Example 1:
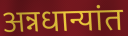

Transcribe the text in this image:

अन्नधान्यांत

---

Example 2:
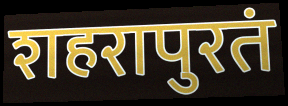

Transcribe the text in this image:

शहरापुरतं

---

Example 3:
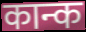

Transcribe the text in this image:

कान्क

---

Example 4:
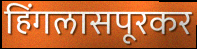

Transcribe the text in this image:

हिंगलासपूरकर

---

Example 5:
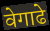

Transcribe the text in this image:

वेगाढे